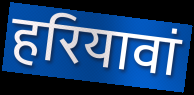
हरियावां